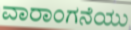
ವಾರಾಂಗನೆಯು